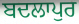
ਬਦਲਾਪੁਰ